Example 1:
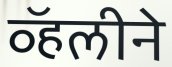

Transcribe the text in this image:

व्हॅलीने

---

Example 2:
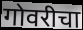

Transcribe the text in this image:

गोवरीचा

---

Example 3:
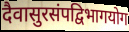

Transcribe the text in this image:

दैवासुरसंपद्विभागयोग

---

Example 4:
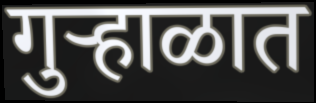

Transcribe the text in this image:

गुऱ्हाळात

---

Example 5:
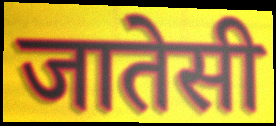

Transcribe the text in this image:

जातेसी